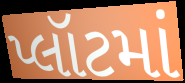
પ્લૉટમાં